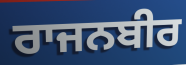
ਰਾਜਨਬੀਰ